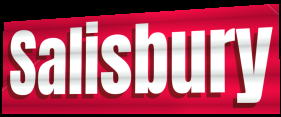
Salisbury